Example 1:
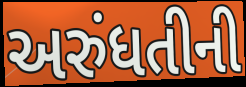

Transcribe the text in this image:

અરુંધતીની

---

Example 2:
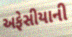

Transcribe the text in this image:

અફેસીયાની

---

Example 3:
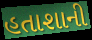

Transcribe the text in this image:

હતાશાની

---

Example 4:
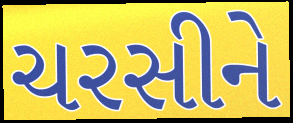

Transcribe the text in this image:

ચરસીને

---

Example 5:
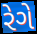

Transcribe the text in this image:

રેગે